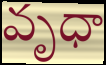
వృధా